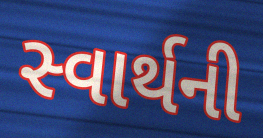
સ્વાર્થની